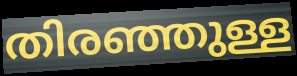
തിരഞ്ഞുള്ള